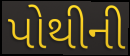
પોથીની